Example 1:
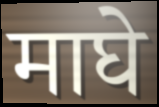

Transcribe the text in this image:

माघे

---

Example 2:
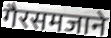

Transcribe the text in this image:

गैरसमजाने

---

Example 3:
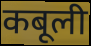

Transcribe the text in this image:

कबूली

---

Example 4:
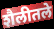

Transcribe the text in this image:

शैलीतले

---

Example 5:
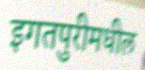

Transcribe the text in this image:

इगतपुरीमधील